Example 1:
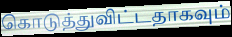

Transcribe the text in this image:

கொடுத்துவிட்டதாகவும்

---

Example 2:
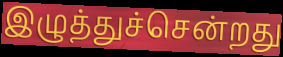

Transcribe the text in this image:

இழுத்துச்சென்றது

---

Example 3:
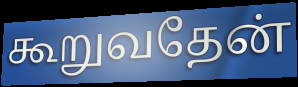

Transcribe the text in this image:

கூறுவதேன்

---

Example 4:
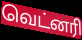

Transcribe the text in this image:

வெட்னரி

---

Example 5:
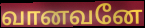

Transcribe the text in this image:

வானவனே